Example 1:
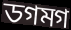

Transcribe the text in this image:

ডগমগ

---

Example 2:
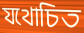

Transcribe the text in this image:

যথোচিত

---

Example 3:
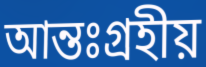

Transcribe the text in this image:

আন্তঃগ্রহীয়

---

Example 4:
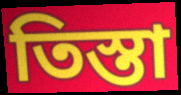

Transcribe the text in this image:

তিস্তা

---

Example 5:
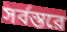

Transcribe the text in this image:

সর্বস্তরে